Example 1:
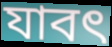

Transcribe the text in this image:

যাবৎ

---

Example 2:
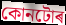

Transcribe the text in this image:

কোনটোৰ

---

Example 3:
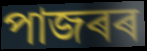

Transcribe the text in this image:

পাজৰৰ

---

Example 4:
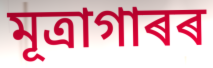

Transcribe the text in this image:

মূত্ৰাগাৰৰ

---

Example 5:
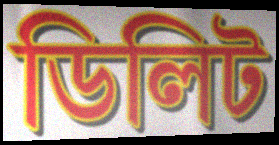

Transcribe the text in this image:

ডিলিট